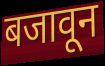
बजावून